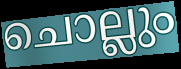
ചൊല്ലും